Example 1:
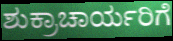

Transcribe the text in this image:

ಶುಕ್ರಾಚಾರ್ಯರಿಗೆ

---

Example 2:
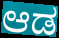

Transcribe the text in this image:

ಆಡ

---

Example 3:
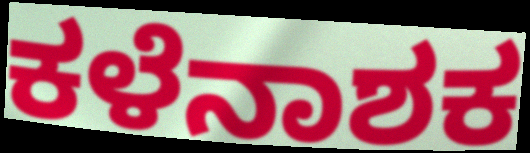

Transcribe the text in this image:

ಕಳೆನಾಶಕ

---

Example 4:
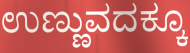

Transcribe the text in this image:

ಉಣ್ಣುವದಕ್ಕೂ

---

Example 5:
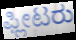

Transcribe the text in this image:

ಫ್ಲೀಟರು